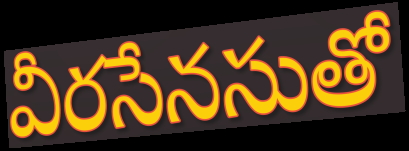
వీరసేనసుతో